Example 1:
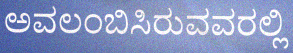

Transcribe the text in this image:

ಅವಲಂಬಿಸಿರುವವರಲ್ಲಿ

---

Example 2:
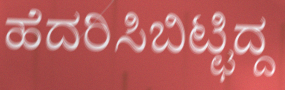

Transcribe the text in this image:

ಹೆದರಿಸಿಬಿಟ್ಟಿದ್ದ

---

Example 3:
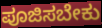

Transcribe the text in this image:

ಪೂಜಿಸಬೇಕು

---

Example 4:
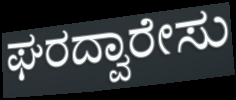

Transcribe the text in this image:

ಘರದ್ವಾರೇಸು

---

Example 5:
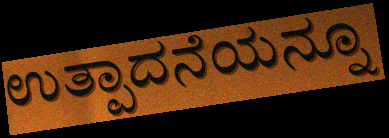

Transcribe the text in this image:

ಉತ್ಪಾದನೆಯನ್ನೂ